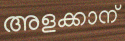
അളക്കാന്